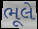
ભૂલે